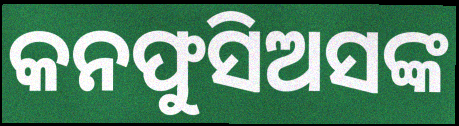
କନଫୁସିଅସଙ୍କ